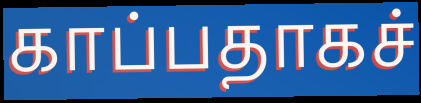
காப்பதாகச்